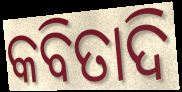
କବିତାଦି